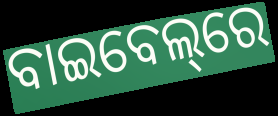
ବାଇବେଲ୍‌ରେ